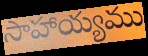
సాహాయ్యము